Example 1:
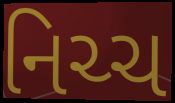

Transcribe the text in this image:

નિચ્ચ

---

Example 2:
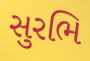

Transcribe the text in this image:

સુરભિ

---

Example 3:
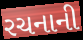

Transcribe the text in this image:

રચનાની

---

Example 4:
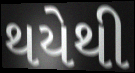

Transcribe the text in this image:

થયેથી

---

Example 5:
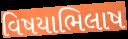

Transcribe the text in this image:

વિષયાભિલાષ